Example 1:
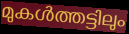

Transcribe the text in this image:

മുകൾത്തട്ടിലും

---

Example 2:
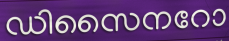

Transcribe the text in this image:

ഡിസൈനറോ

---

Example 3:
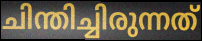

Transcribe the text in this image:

ചിന്തിച്ചിരുന്നത്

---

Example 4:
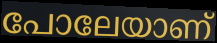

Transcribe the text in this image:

പോലേയാണ്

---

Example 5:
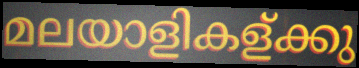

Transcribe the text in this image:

മലയാളികള്ക്കു